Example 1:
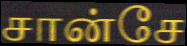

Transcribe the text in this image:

சான்சே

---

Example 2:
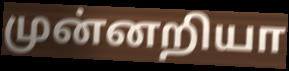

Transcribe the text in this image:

முன்னறியா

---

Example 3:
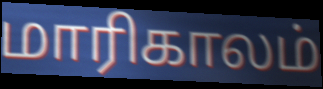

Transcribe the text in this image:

மாரிகாலம்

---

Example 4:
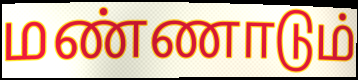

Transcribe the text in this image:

மண்ணாடும்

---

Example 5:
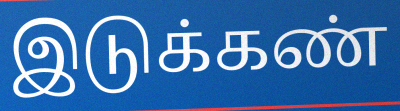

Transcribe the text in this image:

இடுக்கண்